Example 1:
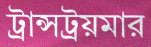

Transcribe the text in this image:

ট্রান্সট্রয়মার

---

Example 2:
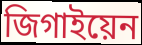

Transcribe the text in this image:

জিগাইয়েন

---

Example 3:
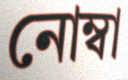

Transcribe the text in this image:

নোম্বা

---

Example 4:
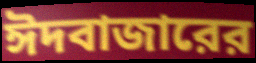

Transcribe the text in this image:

ঈদবাজারের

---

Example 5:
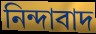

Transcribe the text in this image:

নিন্দাবাদ